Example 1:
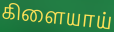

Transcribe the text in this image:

கிளையாய்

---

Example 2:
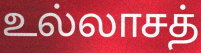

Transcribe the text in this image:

உல்லாசத்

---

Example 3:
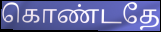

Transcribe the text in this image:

கொண்டதே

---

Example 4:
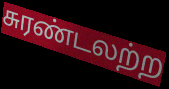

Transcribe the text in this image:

சுரண்டலற்ற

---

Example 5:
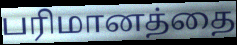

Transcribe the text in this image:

பரிமானத்தை